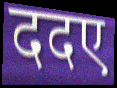
ददए